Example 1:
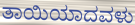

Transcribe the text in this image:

ತಾಯಿಯಾದವಳು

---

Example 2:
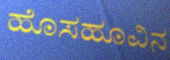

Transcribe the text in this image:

ಹೊಸಹೂವಿನ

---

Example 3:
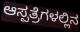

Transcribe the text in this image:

ಆಸ್ಪತ್ರೆಗಳಲ್ಲಿನ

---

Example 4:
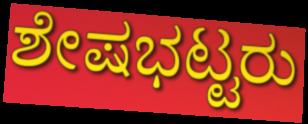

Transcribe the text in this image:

ಶೇಷಭಟ್ಟರು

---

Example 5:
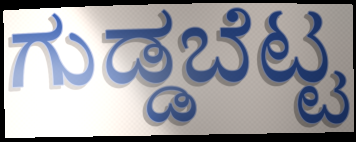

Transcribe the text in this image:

ಗುಡ್ಡಬೆಟ್ಟ